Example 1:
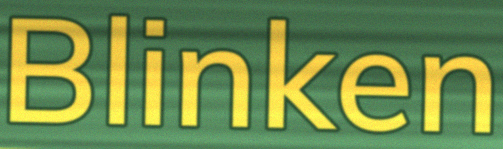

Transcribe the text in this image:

Blinken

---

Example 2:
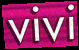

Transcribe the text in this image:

vivi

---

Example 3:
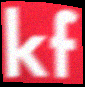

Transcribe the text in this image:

kf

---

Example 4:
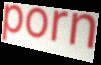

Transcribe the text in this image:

porn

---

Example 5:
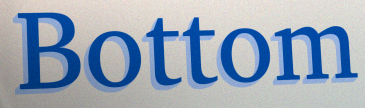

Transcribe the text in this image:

Bottom